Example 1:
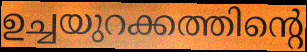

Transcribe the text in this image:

ഉച്ചയുറക്കത്തിന്റെ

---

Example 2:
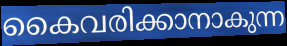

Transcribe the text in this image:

കൈവരിക്കാനാകുന്ന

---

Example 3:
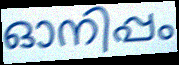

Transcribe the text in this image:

ഓനിപ്പം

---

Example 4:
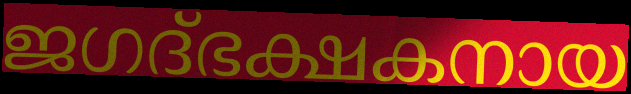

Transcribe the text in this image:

ജഗദ്ഭക്ഷകനായ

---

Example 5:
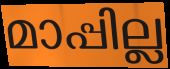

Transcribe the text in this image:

മാപ്പില്ല